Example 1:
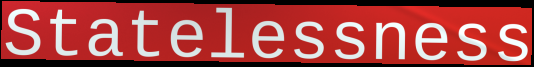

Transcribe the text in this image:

Statelessness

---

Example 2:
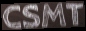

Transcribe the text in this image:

CSMT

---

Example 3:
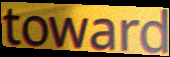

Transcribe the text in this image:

toward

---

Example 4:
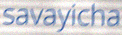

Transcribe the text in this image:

savayicha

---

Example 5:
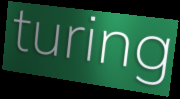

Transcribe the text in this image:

turing